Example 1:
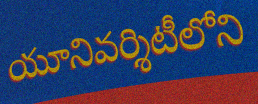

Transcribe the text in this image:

యూనివర్శిటీలోని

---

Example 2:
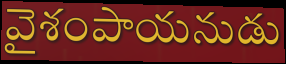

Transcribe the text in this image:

వైశంపాయనుడు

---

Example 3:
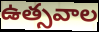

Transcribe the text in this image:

ఉత్సవాల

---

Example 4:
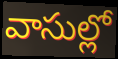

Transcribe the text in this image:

వాసుల్లో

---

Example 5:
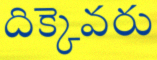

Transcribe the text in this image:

దిక్కెవరు